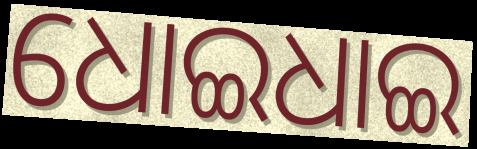
ଧୋଇଧାଇ